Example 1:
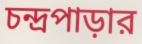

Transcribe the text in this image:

চন্দ্রপাড়ার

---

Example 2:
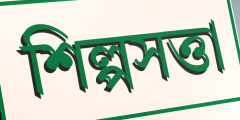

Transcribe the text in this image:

শিল্পসত্তা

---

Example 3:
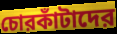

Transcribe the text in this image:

চোরকাঁটাদের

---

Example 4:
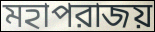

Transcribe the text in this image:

মহাপরাজয়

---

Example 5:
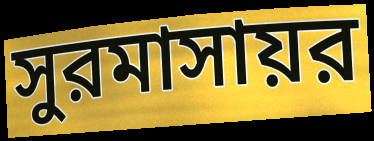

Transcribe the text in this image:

সুরমাসায়র